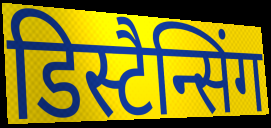
डिस्टैन्सिंग